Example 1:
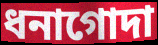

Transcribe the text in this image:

ধনাগোদা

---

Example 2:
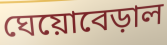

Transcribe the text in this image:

ঘেয়োবেড়াল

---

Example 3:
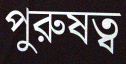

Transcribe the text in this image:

পুরুষত্ব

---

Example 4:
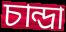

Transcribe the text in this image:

চান্দ্রা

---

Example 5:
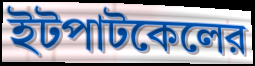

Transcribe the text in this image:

ইটপাটকেলের